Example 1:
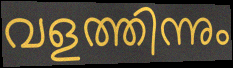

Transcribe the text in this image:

വളത്തിന്നും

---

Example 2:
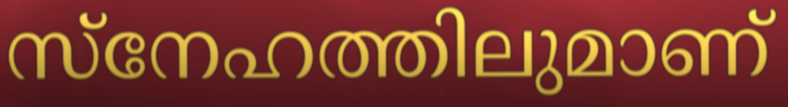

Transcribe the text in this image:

സ്നേഹത്തിലുമാണ്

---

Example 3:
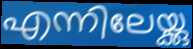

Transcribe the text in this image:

എന്നിലേയ്ക്കു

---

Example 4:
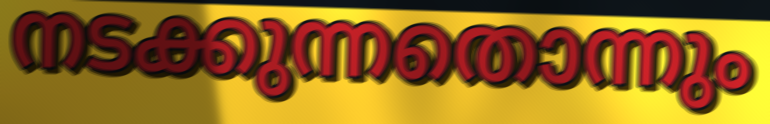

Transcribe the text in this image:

നടക്കുന്നതൊന്നും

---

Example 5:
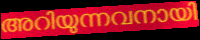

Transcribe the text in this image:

അറിയുന്നവനായി